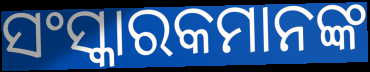
ସଂସ୍କାରକମାନଙ୍କ